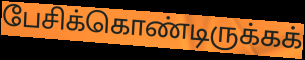
பேசிக்கொண்டிருக்கக்